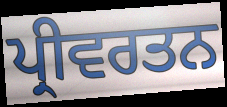
ਪ੍ਰੀਵਰਤਨ